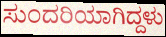
ಸುಂದರಿಯಾಗಿದ್ದಳು